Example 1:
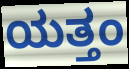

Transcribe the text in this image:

ಯತ್ತಂ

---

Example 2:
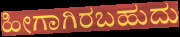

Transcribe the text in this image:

ಹೀಗಾಗಿರಬಹುದು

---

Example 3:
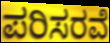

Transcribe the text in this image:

ಪರಿಸರವೆ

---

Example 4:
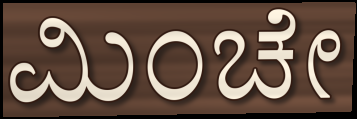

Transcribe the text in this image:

ಮಿಂಚೇ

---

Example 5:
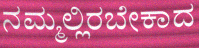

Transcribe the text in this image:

ನಮ್ಮಲ್ಲಿರಬೇಕಾದ